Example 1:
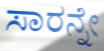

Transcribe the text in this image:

ಸಾರನ್ನೇ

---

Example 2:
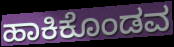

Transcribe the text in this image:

ಹಾಕಿಕೊಂಡವ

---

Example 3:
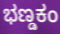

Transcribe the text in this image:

ಭಣ್ಡಕಂ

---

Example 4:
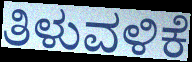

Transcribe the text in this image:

ತಿಳುವಳಿಕೆ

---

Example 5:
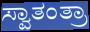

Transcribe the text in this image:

ಸ್ವಾತಂತ್ರಾ